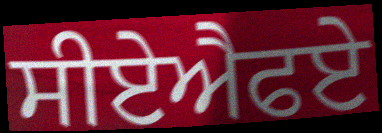
ਸੀਏਐਫਏ